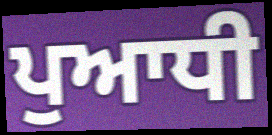
ਪੁਆਧੀ